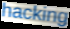
hacking